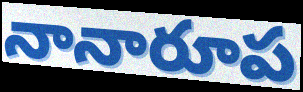
నానారూప